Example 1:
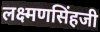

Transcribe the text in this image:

लक्ष्मणसिंहजी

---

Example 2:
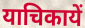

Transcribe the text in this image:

याचिकायें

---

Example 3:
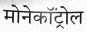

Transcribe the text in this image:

मोनेकॉंट्रोल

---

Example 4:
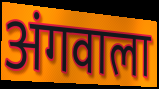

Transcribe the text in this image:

अंगवाला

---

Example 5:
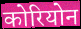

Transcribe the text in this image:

कोरियोन